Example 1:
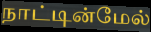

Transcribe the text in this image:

நாட்டின்மேல்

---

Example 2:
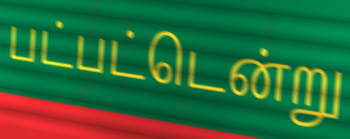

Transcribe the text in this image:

பட்பட்டென்று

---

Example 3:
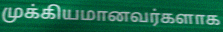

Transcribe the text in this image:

முக்கியமானவர்களாக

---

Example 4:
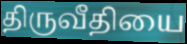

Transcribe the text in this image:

திருவீதியை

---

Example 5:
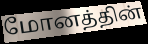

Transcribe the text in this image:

மோனத்தின்